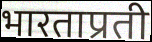
भारताप्रती